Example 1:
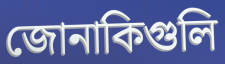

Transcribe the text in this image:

জোনাকিগুলি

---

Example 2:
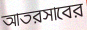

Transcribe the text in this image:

আতরসাবের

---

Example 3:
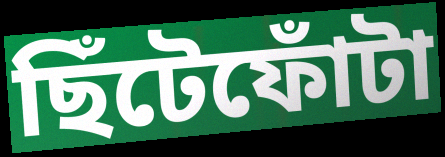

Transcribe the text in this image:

ছিঁটেফোঁটা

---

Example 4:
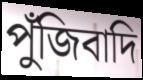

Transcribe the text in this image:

পুঁজিবাদি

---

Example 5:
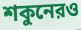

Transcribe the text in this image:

শকুনেরও